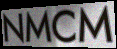
NMCM